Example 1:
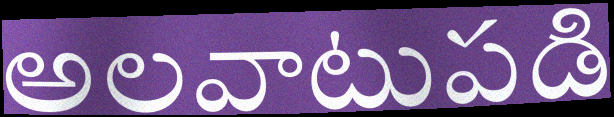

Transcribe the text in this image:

అలవాటుపడి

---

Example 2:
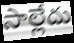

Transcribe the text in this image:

సాల్లేదు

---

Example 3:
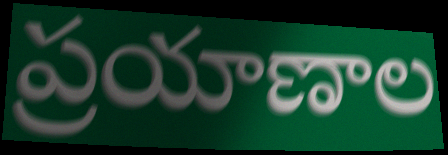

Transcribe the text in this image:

ప్రయాణాల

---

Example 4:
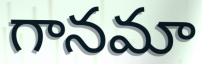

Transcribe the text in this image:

గానమా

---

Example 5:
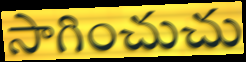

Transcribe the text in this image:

సాగించుచు